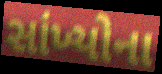
સાંખ્યોના